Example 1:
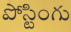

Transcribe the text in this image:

పోస్టింగు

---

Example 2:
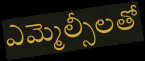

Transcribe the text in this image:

ఎమ్మెల్సీలతో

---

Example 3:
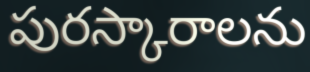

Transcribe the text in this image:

పురస్కారాలను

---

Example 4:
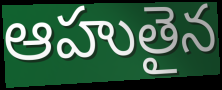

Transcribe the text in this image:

ఆహుతైన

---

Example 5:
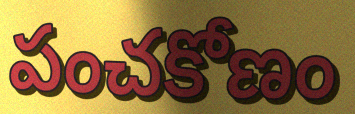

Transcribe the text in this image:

పంచకోణం